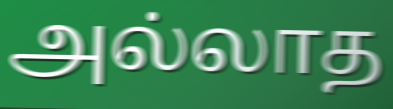
அல்லாத